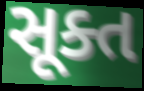
સૂક્ત